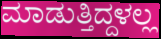
ಮಾಡುತ್ತಿದ್ದಳಲ್ಲ